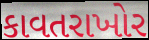
કાવતરાખોર